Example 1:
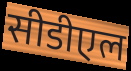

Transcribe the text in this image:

सीडीएल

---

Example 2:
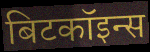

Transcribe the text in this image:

बिटकॉइन्स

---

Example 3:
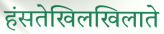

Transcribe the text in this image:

हंसतेखिलखिलाते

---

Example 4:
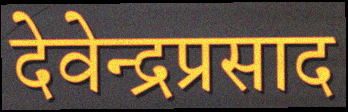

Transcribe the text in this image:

देवेन्द्रप्रसाद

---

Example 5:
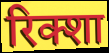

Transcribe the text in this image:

रिक्शा